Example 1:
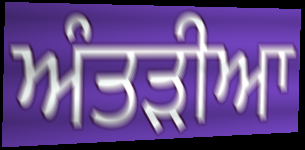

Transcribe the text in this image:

ਅੰਤੜੀਆ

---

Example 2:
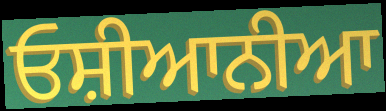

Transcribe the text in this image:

ਓਸ਼ੀਆਨੀਆ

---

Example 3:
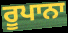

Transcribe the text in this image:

ਰੂਪਾਨਾ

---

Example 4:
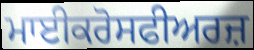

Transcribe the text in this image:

ਮਾਈਕਰੋਸਫੀਅਰਜ਼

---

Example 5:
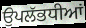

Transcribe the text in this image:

ਉਪਲੱਭਧੀਆਂ